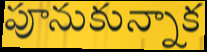
పూనుకున్నాక